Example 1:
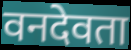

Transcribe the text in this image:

वनदेवता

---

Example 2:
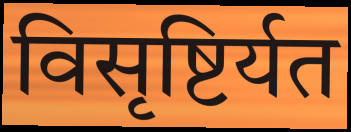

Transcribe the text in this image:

विसृष्टिर्यत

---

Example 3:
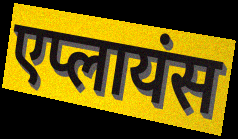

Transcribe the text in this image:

एप्लायंस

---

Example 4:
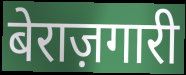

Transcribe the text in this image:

बेराज़गारी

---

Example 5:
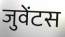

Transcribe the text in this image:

जुवेंटस